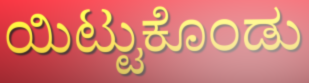
ಯಿಟ್ಟುಕೊಂಡು